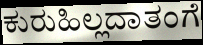
ಕುರುಹಿಲ್ಲದಾತಂಗೆ